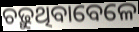
ଚଢ଼ୁଥିବାବେଳେ